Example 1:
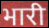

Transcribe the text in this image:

भारी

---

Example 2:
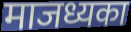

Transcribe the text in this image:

माजध्यका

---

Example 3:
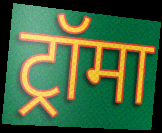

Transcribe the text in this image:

ट्रॉमा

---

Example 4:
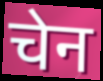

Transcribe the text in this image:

चेन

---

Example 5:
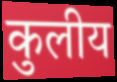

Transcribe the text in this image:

कुलीय